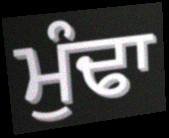
ਮੁੰਢਾ